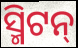
ସ୍ମିଟନ୍